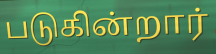
படுகின்றார்